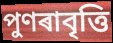
পুণৰাবৃত্তি